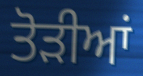
ਤੋਡ਼ੀਆਂ